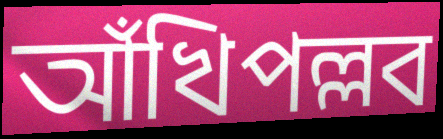
আঁখিপল্লব